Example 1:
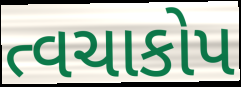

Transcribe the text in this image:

ત્વચાકોપ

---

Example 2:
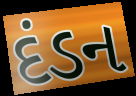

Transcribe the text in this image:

દંડન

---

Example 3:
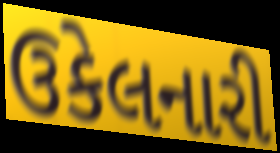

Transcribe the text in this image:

ઉકેલનારી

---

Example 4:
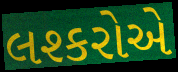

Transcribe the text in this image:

લશ્કરોએ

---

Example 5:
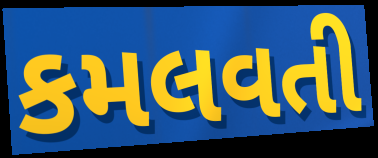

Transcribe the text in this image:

કમલવતી